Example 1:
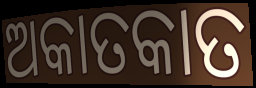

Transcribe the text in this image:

ଅକାତକାତ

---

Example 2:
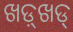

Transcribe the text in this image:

ଖଡ଼୍‌ଖଡ୍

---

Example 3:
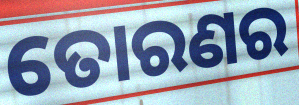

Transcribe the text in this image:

ତୋରଣର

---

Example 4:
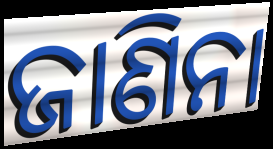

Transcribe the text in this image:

ଜାଣିନା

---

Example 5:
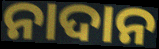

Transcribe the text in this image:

ନାଦାନ